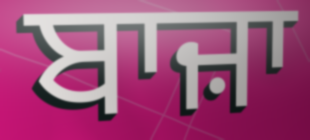
ਬਾਜ਼ਾ